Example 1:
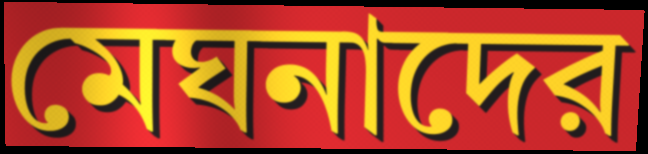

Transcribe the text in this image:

মেঘনাদের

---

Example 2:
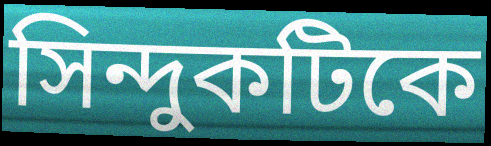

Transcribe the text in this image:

সিন্দুকটিকে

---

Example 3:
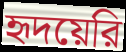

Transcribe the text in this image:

হৃদয়েরি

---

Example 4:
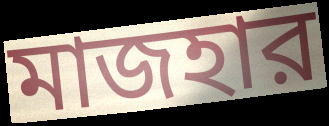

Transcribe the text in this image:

মাজহার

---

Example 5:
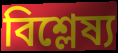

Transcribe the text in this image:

বিশ্লেষ্য